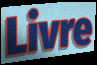
Livre